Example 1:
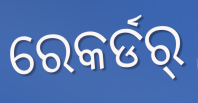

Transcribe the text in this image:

ରେକର୍ଡର୍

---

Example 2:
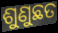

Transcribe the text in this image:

ଶୁଣୁଛତ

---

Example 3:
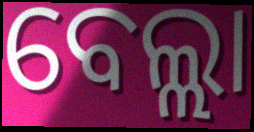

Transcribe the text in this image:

ବେଲ୍ଲା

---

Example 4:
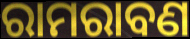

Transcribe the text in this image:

ରାମରାବଣ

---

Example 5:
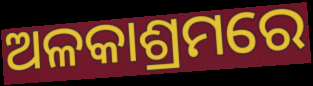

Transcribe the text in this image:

ଅଳକାଶ୍ରମରେ